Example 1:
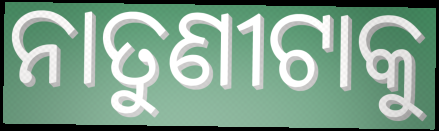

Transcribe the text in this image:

ନାତୁଣୀଟାକୁ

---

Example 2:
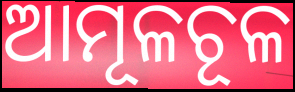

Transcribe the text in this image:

ଆମୂଳଚୂଳ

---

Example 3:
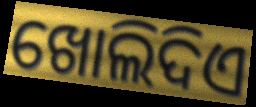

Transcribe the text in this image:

ଖୋଲିଦିଏ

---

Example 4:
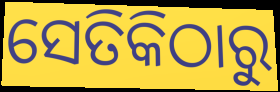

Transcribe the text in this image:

ସେତିକିଠାରୁ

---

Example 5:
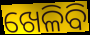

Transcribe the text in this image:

ଖେଳିବି